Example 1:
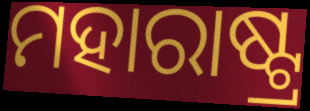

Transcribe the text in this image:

ମହାରାଷ୍ଟ୍ର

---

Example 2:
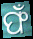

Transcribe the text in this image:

ଫଁ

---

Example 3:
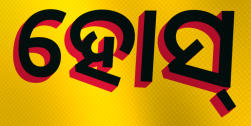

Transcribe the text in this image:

ହୋସ୍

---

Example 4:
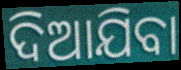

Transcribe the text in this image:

ଦିଆଯିବା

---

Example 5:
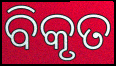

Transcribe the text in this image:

ବିକୃତ